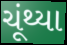
ચૂંથ્યા